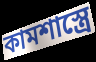
কামশাস্ত্রে